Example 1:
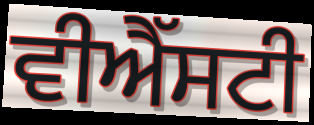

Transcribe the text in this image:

ਵੀਐੱਸਟੀ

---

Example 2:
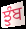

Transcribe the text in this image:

ਝੁੰਬ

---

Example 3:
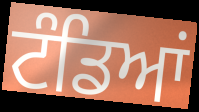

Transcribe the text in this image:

ਟੰਡਿਆਂ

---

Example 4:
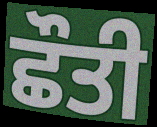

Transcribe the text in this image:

ਛੌਤੀ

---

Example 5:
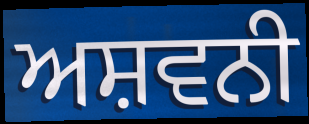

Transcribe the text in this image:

ਅਸ਼ਵਨੀ